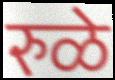
रुळे